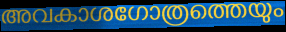
അവകാശഗോത്രത്തെയും